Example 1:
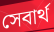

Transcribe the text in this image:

সেবার্থ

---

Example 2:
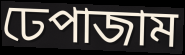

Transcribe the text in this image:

ঢেপাজাম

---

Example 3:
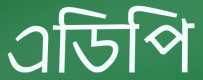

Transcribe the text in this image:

এডিপি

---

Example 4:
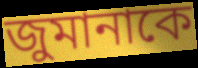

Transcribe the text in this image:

জুমানাকে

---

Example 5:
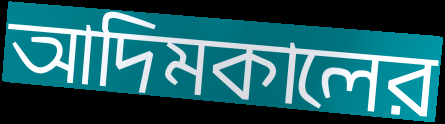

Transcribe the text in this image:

আদিমকালের